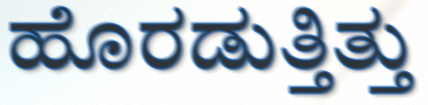
ಹೊರಡುತ್ತಿತ್ತು